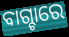
ବାଗ୍ଚାରେ